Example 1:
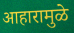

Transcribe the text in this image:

आहारामुळे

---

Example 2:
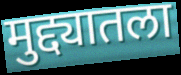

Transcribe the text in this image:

मुद्द्यातला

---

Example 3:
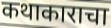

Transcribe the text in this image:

कथाकाराचा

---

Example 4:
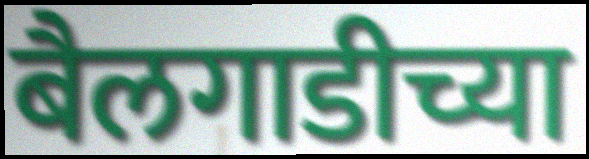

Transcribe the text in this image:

बैलगाडीच्या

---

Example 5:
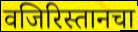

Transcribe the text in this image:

वजिरिस्तानचा